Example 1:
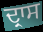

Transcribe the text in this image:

ਦ੍ਰਾਸ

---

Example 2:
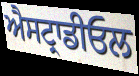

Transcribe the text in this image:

ਐਸਟ੍ਰਾਡੀਓਲ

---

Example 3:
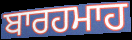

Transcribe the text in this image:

ਬਾਰਹਮਾਹ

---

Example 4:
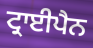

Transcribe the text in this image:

ਟ੍ਰਾਈਪੈਨ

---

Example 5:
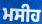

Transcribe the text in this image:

ਮਸੀਹ